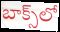
బాక్స్‌లో